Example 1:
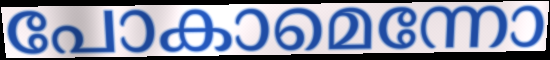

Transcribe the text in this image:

പോകാമെന്നോ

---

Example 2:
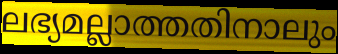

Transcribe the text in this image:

ലഭ്യമല്ലാത്തതിനാലും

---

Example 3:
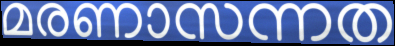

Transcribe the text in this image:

മരണാസന്നത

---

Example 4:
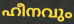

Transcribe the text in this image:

ഹീനവും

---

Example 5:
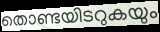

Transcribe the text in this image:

തൊണ്ടയിടറുകയും